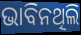
ଭାବିନଥିଲି